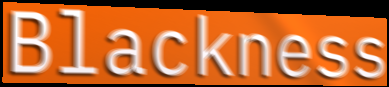
Blackness